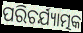
ପରିଚର୍ଯ୍ୟାତ୍ମକ